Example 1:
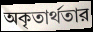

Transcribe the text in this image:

অকৃতার্থতার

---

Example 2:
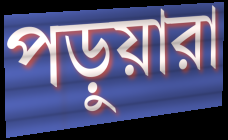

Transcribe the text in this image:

পড়ুয়ারা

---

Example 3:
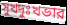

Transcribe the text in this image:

সুখদুঃখভার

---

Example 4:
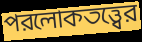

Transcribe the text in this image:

পরলোকতত্ত্বের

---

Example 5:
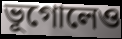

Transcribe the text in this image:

ভূগোলেও